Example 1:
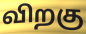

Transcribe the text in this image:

விறகு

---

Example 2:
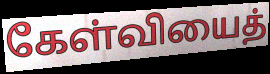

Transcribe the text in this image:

கேள்வியைத்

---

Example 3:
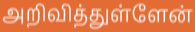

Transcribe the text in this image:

அறிவித்துள்ளேன்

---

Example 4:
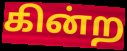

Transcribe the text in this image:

கின்ற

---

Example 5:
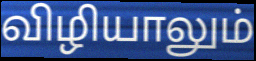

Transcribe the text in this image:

விழியாலும்